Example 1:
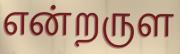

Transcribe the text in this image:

என்றருள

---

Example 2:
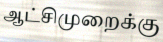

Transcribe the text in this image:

ஆட்சிமுறைக்கு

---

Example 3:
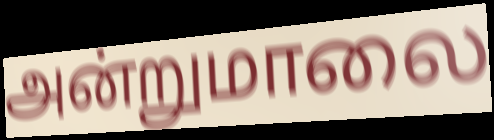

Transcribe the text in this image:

அன்றுமாலை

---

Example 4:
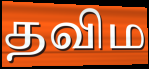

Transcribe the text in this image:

தவிம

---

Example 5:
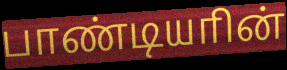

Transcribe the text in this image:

பாண்டியரின்